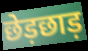
छेड़छाड़